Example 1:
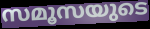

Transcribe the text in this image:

സമൂസയുടെ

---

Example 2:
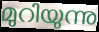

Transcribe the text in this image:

മുറിയുന്നു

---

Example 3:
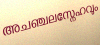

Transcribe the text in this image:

അചഞ്ചലസ്നേഹവും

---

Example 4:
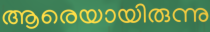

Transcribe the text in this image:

ആരെയായിരുന്നു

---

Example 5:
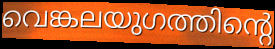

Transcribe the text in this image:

വെങ്കലയുഗത്തിന്റെ